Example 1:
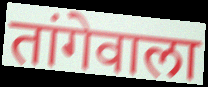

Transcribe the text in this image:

तांगेवाला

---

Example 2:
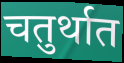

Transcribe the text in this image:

चतुर्थात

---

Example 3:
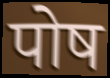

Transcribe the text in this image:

पोष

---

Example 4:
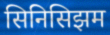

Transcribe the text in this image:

सिनिसिझम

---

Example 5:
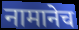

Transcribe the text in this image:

नामानेच